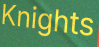
Knights